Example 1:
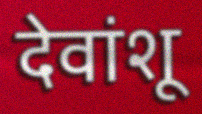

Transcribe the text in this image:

देवांशू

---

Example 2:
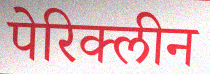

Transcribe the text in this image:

पेरिक्लीन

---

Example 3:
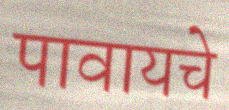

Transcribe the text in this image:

पावायचे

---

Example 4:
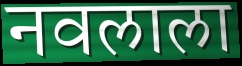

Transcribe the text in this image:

नवलाला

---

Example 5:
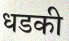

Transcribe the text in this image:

धडकी